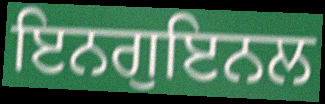
ਇਨਗੁਇਨਲ